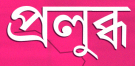
প্রলুব্ধ